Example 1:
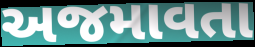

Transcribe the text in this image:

અજમાવતા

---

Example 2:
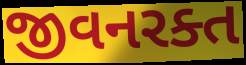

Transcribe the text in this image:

જીવનરક્ત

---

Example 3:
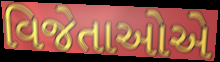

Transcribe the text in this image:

વિજેતાઓએ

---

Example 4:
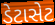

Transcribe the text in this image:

ડેટાસેટ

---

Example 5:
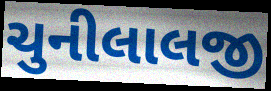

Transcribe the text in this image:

ચુનીલાલજી